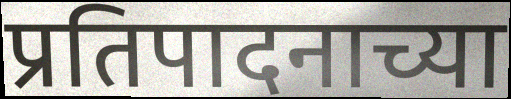
प्रतिपादनाच्या